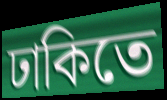
ঢাকিতে